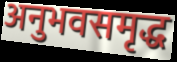
अनुभवसमृद्ध